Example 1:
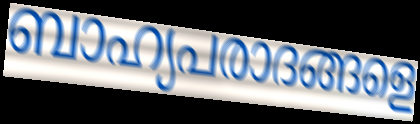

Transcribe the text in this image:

ബാഹ്യപരാദങ്ങളെ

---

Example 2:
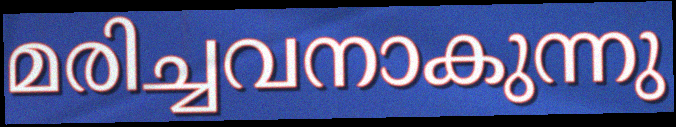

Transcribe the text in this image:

മരിച്ചവനാകുന്നു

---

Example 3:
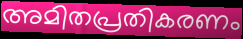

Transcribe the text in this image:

അമിതപ്രതികരണം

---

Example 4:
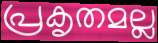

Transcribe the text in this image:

പ്രകൃതമല്ല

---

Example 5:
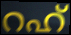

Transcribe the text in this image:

റഹ്